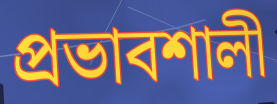
প্ৰভাবশালী